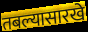
तबल्यासारखे